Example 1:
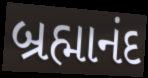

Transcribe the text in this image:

બ્રહ્માનંદ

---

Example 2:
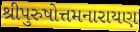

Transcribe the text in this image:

શ્રીપુરુષોત્તમનારાયણ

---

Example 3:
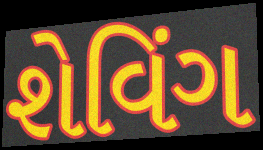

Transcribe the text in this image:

શેવિંગ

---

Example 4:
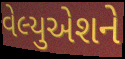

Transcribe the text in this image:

વેલ્યુએશને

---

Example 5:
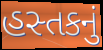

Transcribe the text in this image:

હસ્તકનું